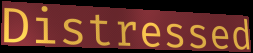
Distressed